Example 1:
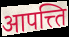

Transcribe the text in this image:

आपत्त्ति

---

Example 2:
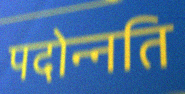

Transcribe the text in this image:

पदोन्नति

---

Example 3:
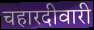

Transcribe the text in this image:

चहारदीवारी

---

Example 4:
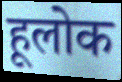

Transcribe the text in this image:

हूलोक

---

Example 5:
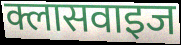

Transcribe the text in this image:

क्लासवाइज